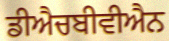
ਡੀਐਚਬੀਵੀਐਨ